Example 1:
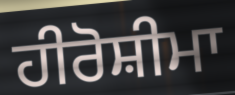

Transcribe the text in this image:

ਹੀਰੋਸ਼ੀਮਾ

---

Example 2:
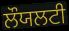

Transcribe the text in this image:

ਲੌਯਲਟੀ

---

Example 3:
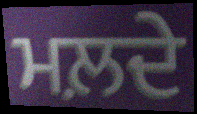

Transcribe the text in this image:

ਮਲ਼ਦੇ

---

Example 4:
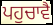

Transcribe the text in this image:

ਪਹੁਚਾਵੈ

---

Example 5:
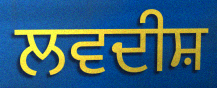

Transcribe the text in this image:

ਲਵਦੀਸ਼